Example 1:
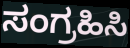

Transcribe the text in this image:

ಸಂಗ್ರಹಿಸಿ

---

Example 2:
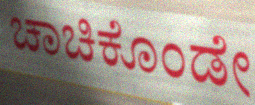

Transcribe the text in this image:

ಚಾಚಿಕೊಂಡೇ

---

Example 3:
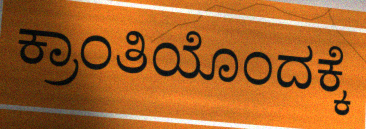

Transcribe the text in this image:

ಕ್ರಾಂತಿಯೊಂದಕ್ಕೆ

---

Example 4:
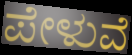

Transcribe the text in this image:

ಪೇಳುವೆ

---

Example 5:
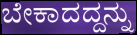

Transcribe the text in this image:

ಬೇಕಾದದ್ದನ್ನು